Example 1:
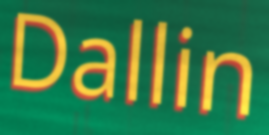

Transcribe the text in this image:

Dallin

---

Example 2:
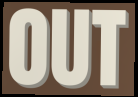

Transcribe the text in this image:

OUT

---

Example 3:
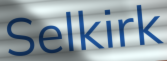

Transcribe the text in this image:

Selkirk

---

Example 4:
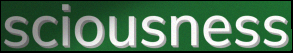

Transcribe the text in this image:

sciousness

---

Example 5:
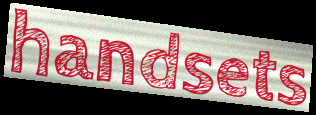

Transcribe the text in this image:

handsets